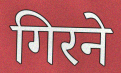
गिरने